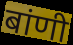
बांणी